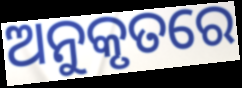
ଅନୁକୃତରେ